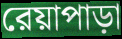
রেয়াপাড়া